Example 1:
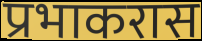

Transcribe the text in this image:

प्रभाकरास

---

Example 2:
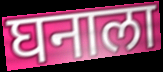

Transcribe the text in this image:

घनाला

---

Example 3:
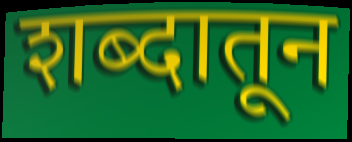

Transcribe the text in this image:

शब्दातून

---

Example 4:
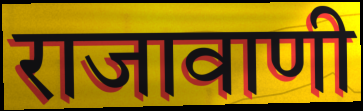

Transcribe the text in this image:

राजावाणी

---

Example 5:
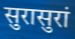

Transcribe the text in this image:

सुरासुरां